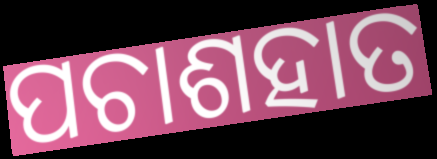
ପଚାଶହାତ